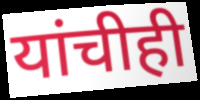
यांचीही